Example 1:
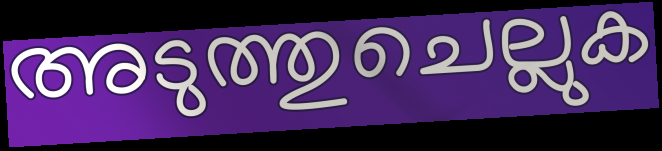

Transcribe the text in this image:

അടുത്തുചെല്ലുക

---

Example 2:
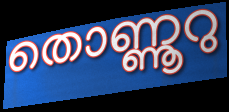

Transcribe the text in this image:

തൊണ്ണൂറു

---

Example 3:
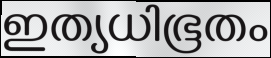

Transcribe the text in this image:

ഇത്യധിഭൂതം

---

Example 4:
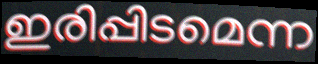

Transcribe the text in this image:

ഇരിപ്പിടമെന്ന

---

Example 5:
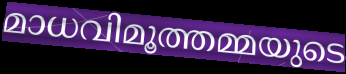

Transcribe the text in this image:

മാധവിമൂത്തമ്മയുടെ